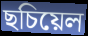
ছচিয়েল